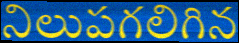
నిలుపగలిగిన